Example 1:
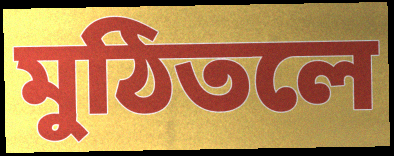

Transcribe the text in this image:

মুঠিতলে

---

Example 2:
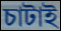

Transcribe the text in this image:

চাটাই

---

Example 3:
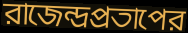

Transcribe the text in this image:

রাজেন্দ্রপ্রতাপের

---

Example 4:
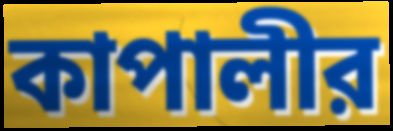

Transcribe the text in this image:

কাপালীর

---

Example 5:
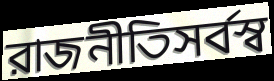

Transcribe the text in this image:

রাজনীতিসর্বস্ব